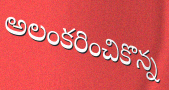
అలంకరించికొన్న